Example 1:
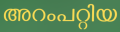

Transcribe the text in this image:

അറംപറ്റിയ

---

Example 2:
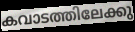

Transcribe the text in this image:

കവാടത്തിലേക്കു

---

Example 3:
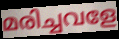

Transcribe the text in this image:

മരിച്ചവളേ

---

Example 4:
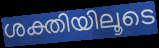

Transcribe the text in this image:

ശക്തിയിലൂടെ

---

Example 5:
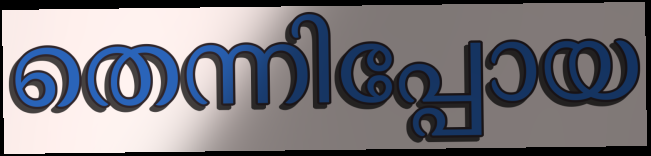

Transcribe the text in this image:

തെന്നിപ്പോയ